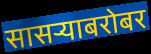
सासऱ्याबरोबर